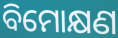
ବିମୋକ୍ଷଣ